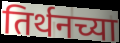
तिर्थनच्या